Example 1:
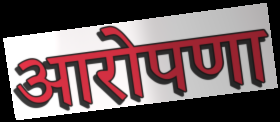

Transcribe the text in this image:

आरोपणा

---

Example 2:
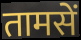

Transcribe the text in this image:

तामसें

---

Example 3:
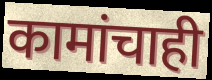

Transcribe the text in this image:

कामांचाही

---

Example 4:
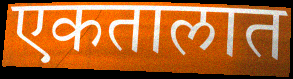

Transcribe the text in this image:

एकतालात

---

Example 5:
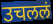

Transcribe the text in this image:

उचललं